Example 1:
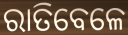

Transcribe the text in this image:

ରାତିବେଳେ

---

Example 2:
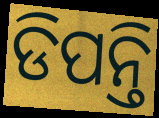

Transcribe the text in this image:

ଡିପନ୍ତି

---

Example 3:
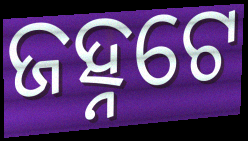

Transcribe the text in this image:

ଜହ୍ନଟେ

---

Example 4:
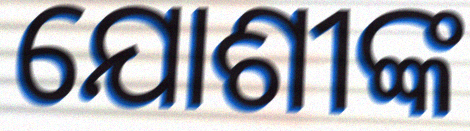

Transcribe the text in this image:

ଯୋଶୀଙ୍କ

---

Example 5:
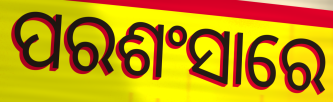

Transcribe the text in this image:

ପରଶଂସାରେ